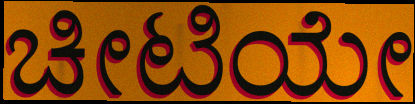
ಚೀಟಿಯೇ